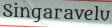
Singaravelu